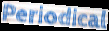
Periodical